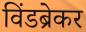
विंडब्रेकर